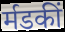
र्मडकीं